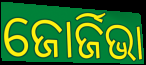
ଜୋର୍ଜିଭା